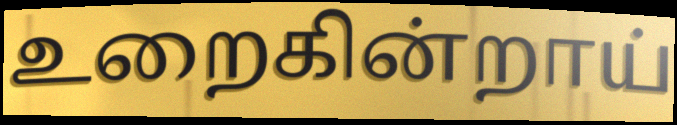
உறைகின்றாய்